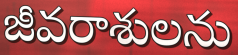
జీవరాశులను